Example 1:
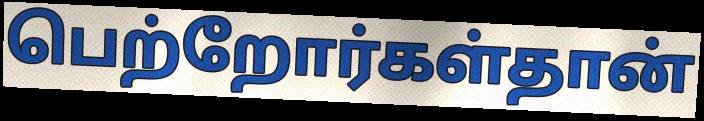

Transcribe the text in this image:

பெற்றோர்கள்தான்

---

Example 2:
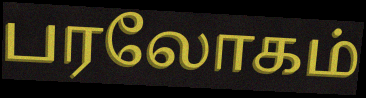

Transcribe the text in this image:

பரலோகம்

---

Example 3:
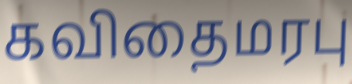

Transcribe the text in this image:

கவிதைமரபு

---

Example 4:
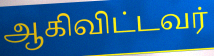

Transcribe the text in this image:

ஆகிவிட்டவர்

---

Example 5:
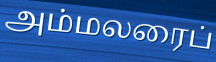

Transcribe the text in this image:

அம்மலரைப்